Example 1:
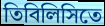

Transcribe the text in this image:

তিবিলিসিতে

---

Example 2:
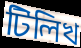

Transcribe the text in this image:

টিলিখ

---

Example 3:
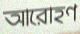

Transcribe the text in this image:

আরোহণ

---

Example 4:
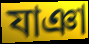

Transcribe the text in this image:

যাঞা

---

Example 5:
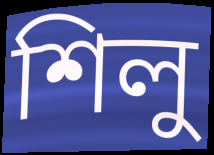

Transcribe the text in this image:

শিলু